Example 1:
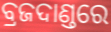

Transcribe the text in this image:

ବ୍ରଜଦାଣ୍ଡରେ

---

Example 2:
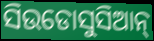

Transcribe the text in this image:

ସିଉଡୋସୁସିଆନ୍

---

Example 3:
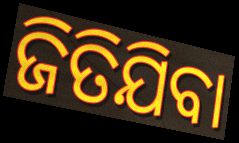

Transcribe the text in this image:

ଜିତିଯିବା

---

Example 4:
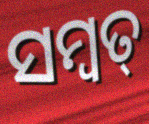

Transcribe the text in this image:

ସମ୍ବତ୍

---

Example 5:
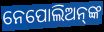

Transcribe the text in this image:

ନେପୋଲିଅନ୍‌ଙ୍କ